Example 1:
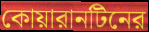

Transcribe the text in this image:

কোয়ারানটিনের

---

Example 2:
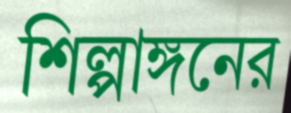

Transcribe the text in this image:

শিল্পাঙ্গনের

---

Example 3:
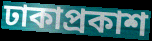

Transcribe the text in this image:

ঢাকাপ্রকাশ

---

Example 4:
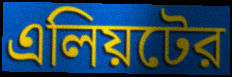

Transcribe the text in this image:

এলিয়টের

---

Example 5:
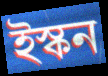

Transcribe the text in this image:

ইস্কন